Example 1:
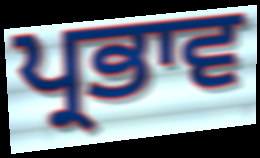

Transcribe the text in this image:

ਪ੍ਰਭਾਵ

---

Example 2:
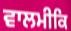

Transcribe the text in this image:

ਵਾਲਮੀਕਿ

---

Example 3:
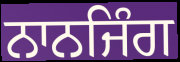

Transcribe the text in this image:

ਨਾਨਜਿੰਗ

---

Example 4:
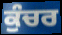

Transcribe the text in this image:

ਕੁੰਚਰ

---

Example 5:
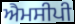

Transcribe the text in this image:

ਐਮਸੀਪੀ